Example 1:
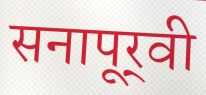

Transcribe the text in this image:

सनापूर्वी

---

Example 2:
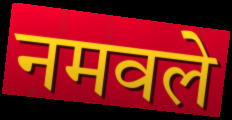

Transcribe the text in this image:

नमवले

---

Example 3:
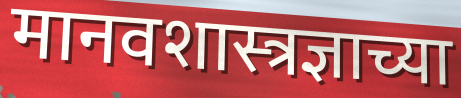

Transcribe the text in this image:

मानवशास्त्रज्ञाच्या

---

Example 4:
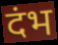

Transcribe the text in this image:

दंभ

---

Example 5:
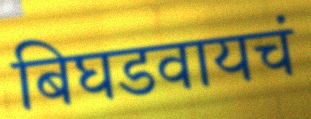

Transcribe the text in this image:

बिघडवायचं